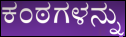
ಕಂಠಗಳನ್ನು